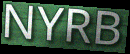
NYRB